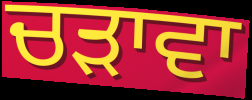
ਚੜਾਵਾ